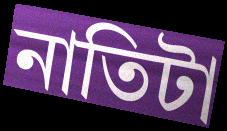
নাতিটা